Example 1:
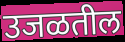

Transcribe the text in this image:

उजळतील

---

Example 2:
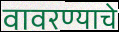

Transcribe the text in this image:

वावरण्याचे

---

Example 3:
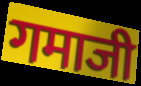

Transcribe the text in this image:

गमाजी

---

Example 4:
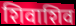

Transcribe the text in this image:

शिवाशिव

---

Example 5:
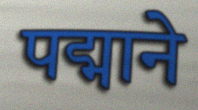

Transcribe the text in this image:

पद्माने